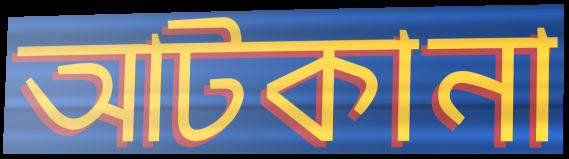
আটকানা